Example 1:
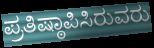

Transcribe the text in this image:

ಪ್ರತಿಷ್ಠಾಪಿಸಿರುವರು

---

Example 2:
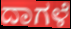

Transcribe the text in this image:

ದಾಗಳೆ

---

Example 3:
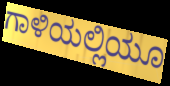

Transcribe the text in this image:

ಗಾಳಿಯಲ್ಲಿಯೂ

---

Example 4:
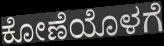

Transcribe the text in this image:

ಕೋಣೆಯೊಳಗೆ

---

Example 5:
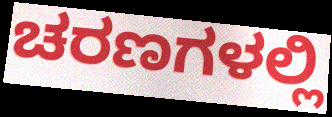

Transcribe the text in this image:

ಚರಣಗಳಲ್ಲಿ